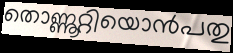
തൊണ്ണൂറ്റിയൊൻപതു